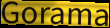
Gorama